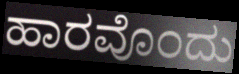
ಹಾರವೊಂದು